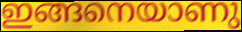
ഇങ്ങനെയാണു